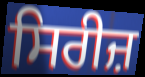
ਸਿਰੀਜ਼